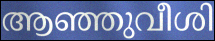
ആഞ്ഞുവീശി